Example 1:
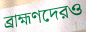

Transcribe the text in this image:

ব্রাহ্মণদেরও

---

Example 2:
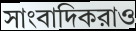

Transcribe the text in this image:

সাংবাদিকরাও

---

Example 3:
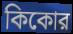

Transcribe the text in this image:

কিকোর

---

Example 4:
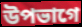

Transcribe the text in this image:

উপভাগে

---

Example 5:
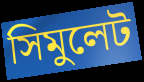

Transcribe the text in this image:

সিমুলেট